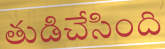
తుడిచేసింది